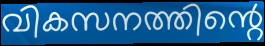
വികസനത്തിന്റെ